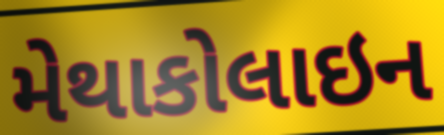
મેથાકોલાઇન